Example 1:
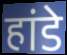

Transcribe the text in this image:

हांडे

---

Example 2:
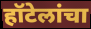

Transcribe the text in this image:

हॉटेलांचा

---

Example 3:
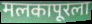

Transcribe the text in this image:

मलकापूरला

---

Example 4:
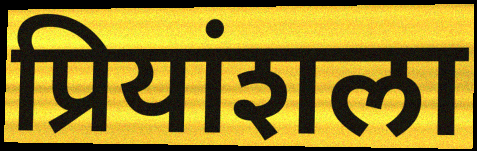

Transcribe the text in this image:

प्रियांशला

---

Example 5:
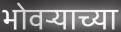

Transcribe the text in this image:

भोवऱ्याच्या